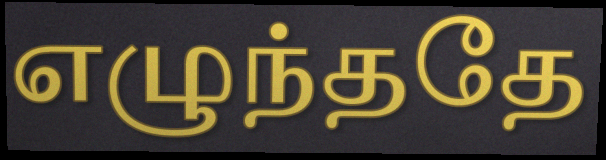
எழுந்ததே